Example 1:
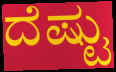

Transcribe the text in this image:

ದೆಷ್ಟು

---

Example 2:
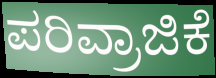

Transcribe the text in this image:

ಪರಿವ್ರಾಜಿಕೆ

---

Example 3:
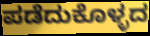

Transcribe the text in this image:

ಪಡೆದುಕೊಳ್ಳದ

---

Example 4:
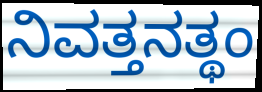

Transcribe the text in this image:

ನಿವತ್ತನತ್ಥಂ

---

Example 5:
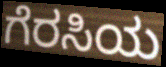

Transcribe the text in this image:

ಗೆರಸಿಯ